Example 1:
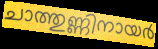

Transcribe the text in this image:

ചാത്തുണ്ണിനായർ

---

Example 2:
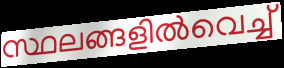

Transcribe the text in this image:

സ്ഥലങ്ങളിൽവെച്ച്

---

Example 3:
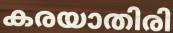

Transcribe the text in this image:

കരയാതിരി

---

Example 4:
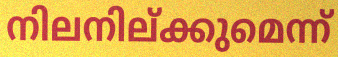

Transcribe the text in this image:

നിലനില്ക്കുമെന്ന്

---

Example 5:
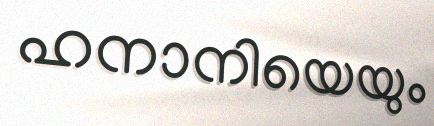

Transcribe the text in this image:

ഹനാനിയെയും